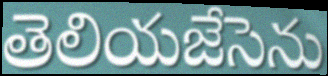
తెలియజేసెను